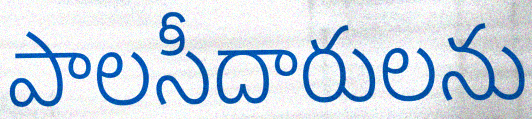
పాలసీదారులను